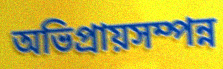
অভিপ্রায়সম্পন্ন